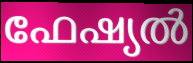
ഫേഷ്യൽ